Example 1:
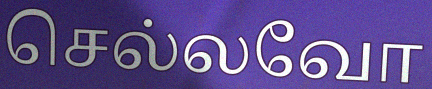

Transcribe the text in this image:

செல்லவோ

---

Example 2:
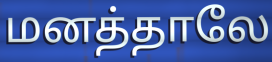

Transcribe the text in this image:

மனத்தாலே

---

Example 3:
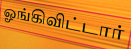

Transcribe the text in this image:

ஓங்கிவிட்டார்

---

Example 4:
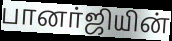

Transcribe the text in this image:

பானர்ஜியின்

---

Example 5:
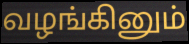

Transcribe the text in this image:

வழங்கினும்